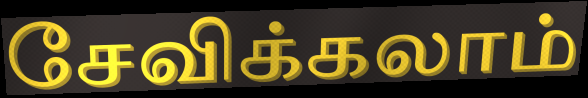
சேவிக்கலாம்